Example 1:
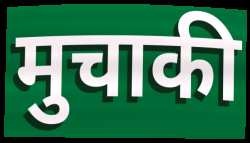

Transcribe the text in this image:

मुचाकी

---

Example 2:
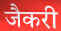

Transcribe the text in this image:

जैकरी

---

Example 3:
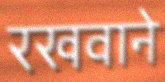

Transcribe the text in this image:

रखवाने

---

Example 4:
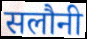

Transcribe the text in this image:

सलौनी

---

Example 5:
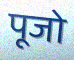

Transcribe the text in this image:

पूजो